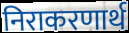
निराकरणार्थ